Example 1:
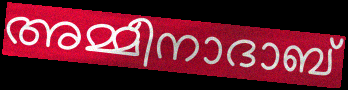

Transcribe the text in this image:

അമ്മീനാദാബ്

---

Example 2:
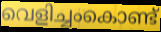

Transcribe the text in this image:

വെളിച്ചംകൊണ്ട്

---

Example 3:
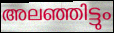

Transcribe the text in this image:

അലഞ്ഞിട്ടും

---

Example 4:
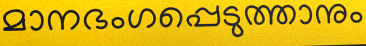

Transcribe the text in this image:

മാനഭംഗപ്പെടുത്താനും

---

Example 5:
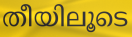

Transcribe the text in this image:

തീയിലൂടെ